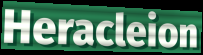
Heracleion